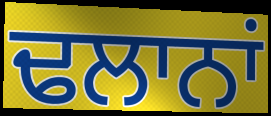
ਢਲਾਨਾਂ